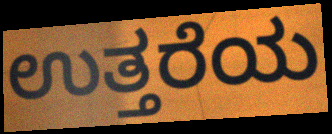
ಉತ್ತರೆಯ